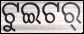
ଟୁଇଟର୍